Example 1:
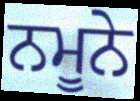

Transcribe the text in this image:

ਨਮੂਨੇ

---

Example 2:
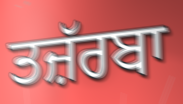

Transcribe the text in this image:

ਤਜ਼ੱਰਬਾ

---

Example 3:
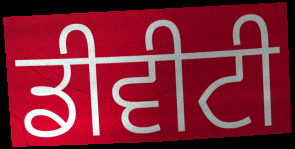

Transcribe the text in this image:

ਡੀਵੀਟੀ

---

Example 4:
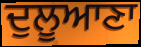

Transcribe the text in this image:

ਦੁਲੂਆਣਾ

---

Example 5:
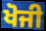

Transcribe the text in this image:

ਖੋਜੀ